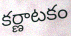
కర్ణాటకం